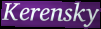
Kerensky